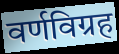
वर्णविग्रह